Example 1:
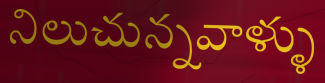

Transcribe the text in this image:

నిలుచున్నవాళ్ళు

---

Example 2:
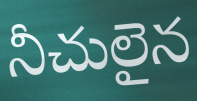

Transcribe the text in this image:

నీచులైన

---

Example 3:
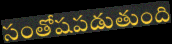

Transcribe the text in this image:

సంతోషపడుతుంది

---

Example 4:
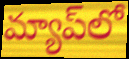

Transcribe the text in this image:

మ్యాప్‌లో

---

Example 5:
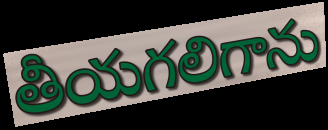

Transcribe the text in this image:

తీయగలిగాను